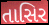
તાસિર